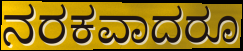
ನರಕವಾದರೂ